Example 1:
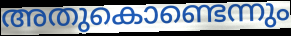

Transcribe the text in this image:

അതുകൊണ്ടെന്നും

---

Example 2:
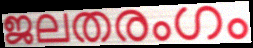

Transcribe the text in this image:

ജലതരംഗം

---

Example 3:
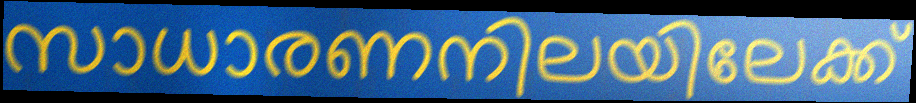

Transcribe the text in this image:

സാധാരണനിലയിലേക്ക്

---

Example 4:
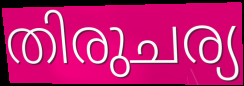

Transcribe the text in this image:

തിരുചര്യ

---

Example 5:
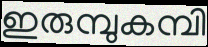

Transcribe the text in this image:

ഇരുമ്പുകമ്പി